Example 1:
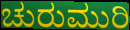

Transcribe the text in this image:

ಚುರುಮುರಿ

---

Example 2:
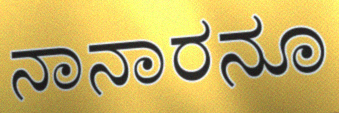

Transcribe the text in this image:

ನಾನಾರನೂ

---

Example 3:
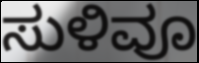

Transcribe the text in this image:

ಸುಳಿವೂ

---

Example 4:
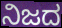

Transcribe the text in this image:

ನಿಜದ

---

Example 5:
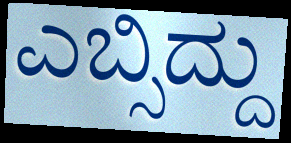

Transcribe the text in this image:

ಎಬ್ಸಿದ್ದು